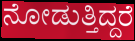
ನೋಡುತ್ತಿದ್ದರೆ